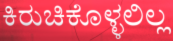
ಕಿರುಚಿಕೊಳ್ಳಲಿಲ್ಲ